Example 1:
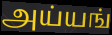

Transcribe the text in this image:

அய்யங்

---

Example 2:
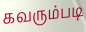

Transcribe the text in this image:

கவரும்படி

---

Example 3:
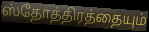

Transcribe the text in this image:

ஸ்தோத்திரத்தையும்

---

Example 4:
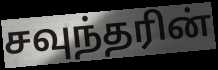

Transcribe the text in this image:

சவுந்தரின்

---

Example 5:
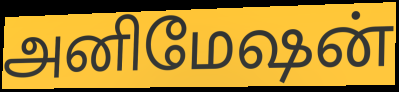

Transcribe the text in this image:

அனிமேஷன்